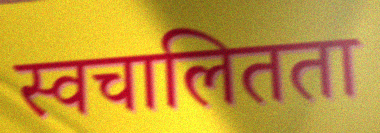
स्वचालितता